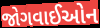
જોગવાઈઓન